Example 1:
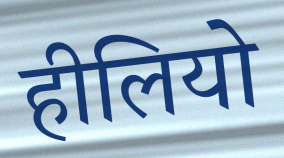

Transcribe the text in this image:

हीलियो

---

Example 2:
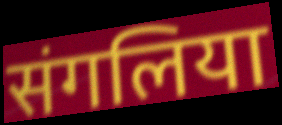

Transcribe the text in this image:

संगलिया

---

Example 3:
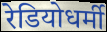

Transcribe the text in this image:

रेडियोधर्मी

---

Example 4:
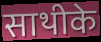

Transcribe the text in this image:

साथीके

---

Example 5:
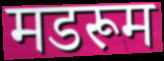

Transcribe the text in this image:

मडरूम